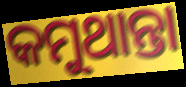
କମୁଥାନ୍ତା